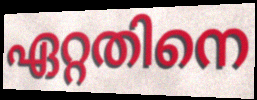
ഏറ്റതിനെ